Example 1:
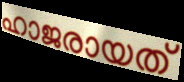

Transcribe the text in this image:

ഹാജരായത്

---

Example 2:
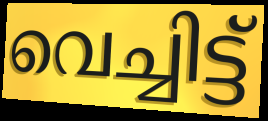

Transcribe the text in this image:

വെച്ചിട്ട്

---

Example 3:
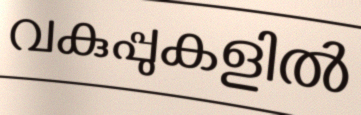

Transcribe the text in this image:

വകുപ്പുകളിൽ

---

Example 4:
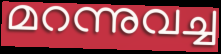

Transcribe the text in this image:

മറന്നുവച്ച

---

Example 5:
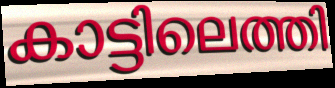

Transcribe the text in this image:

കാട്ടിലെത്തി